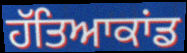
ਹੱਤਿਆਕਾਂਡ